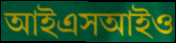
আইএসআইও